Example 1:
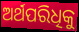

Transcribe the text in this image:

ଅର୍ଥପରିଧିକୁ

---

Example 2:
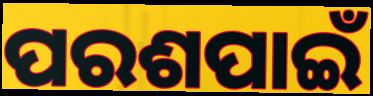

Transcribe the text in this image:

ପରଶପାଇଁ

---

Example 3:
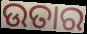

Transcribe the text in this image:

ଉତାର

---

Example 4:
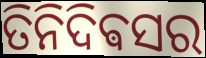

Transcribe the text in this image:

ତିନିଦିଵସର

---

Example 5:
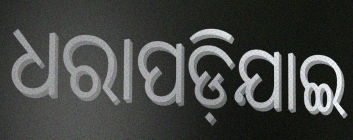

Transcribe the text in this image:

ଧରାପଡ଼ିଯାଇ